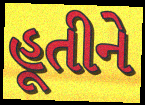
હૂતીને